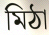
মিঠা